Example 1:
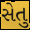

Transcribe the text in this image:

સેતુ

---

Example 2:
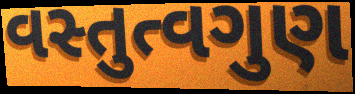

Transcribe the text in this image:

વસ્તુત્વગુણ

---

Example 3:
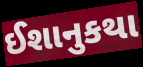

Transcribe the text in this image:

ઈશાનુકથા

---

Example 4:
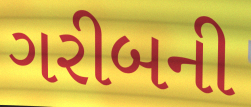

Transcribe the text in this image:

ગરીબની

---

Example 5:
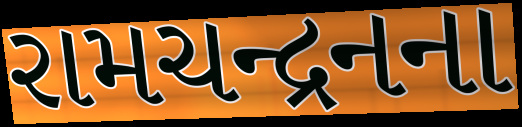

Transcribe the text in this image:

રામચન્દ્રનના